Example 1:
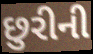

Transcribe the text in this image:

છુરીની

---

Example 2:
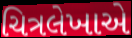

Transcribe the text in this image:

ચિત્રલેખાએ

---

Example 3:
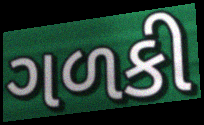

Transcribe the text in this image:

ગળકી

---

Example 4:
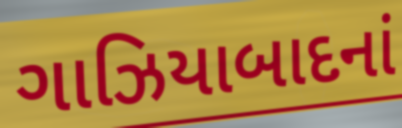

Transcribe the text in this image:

ગાઝિયાબાદનાં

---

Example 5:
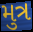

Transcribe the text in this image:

મુત્ર